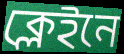
ক্লেইনে